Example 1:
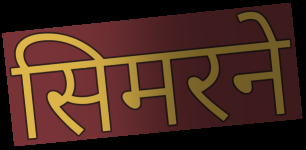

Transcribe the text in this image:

सिमरने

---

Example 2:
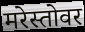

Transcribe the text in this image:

मरेस्तोवर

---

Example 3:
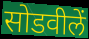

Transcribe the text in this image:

सोडवीलें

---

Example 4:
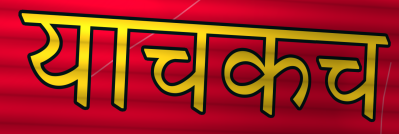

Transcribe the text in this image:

याचकच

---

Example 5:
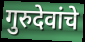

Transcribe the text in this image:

गुरुदेवांचे